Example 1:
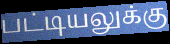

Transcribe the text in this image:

பட்டியலுக்கு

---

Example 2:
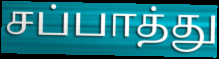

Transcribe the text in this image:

சப்பாத்து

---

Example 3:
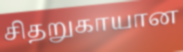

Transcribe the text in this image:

சிதறுகாயான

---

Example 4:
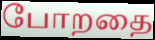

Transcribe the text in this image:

போறதை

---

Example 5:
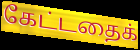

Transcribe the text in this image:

கேட்டதைக்